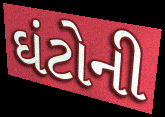
ઘંટોની